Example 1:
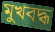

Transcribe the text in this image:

মুখবদ্ধ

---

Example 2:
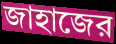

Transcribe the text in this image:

জাহাজের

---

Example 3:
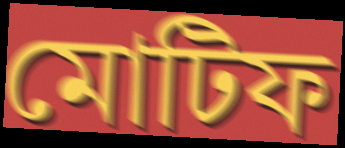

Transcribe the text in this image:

মোটিফ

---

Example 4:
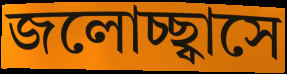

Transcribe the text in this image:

জলোচ্ছ্বাসে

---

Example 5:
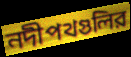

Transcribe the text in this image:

নদীপথগুলির